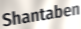
Shantaben